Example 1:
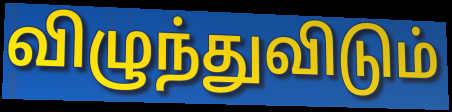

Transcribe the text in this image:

விழுந்துவிடும்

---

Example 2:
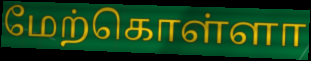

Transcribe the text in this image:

மேற்கொள்ளா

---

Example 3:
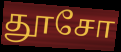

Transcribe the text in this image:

தூசோ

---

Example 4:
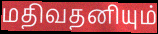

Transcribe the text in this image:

மதிவதனியும்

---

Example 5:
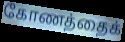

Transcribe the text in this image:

கோணத்தைக்